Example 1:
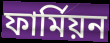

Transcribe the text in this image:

ফাৰ্মিয়ন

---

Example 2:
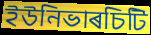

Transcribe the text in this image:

ইউনিভাৰচিটি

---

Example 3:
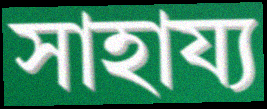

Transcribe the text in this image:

সাহায্য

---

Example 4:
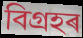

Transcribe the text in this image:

বিগ্ৰহৰ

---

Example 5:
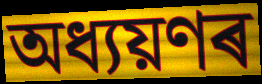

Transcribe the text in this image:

অধ্যয়ণৰ